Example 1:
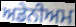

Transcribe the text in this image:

ਅਡੇਨੀਅਮ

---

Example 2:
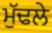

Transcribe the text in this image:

ਮੁੱਢਲੇ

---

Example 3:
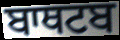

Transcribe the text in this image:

ਬਾਥਟਬ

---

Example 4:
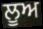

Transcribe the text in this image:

ਲੂਅ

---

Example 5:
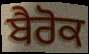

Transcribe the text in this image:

ਬੈਰੋਕ